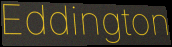
Eddington